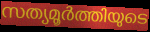
സത്യമൂർത്തിയുടെ